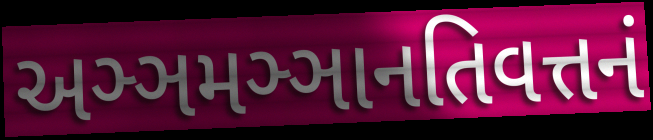
અઞ્ઞમઞ્ઞાનતિવત્તનં